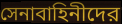
সেনাবাহিনীদের